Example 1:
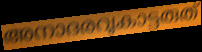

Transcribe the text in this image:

അനാദരവുകാട്ടരുത്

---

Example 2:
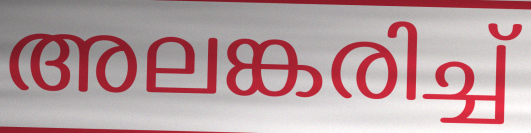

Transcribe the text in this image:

അലങ്കരിച്ച്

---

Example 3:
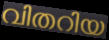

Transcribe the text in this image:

വിതറിയ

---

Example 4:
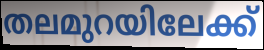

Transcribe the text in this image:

തലമുറയിലേക്ക്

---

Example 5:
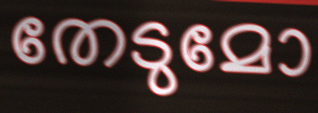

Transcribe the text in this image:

തേടുമോ